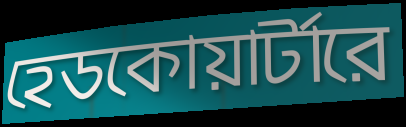
হেডকোয়ার্টারে